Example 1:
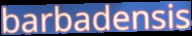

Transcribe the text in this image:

barbadensis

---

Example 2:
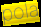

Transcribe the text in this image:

pola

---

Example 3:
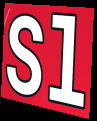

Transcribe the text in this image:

Sl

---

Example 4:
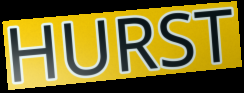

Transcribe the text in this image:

HURST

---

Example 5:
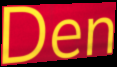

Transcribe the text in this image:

Den